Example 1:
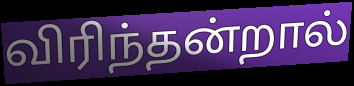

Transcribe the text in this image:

விரிந்தன்றால்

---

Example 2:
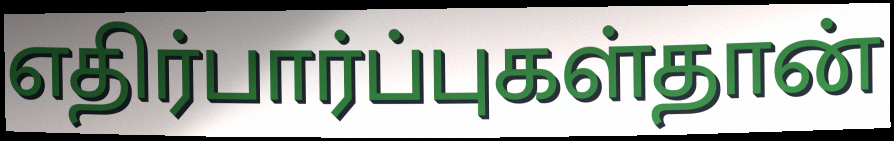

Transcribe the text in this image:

எதிர்பார்ப்புகள்தான்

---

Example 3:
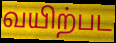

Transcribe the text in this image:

வயிற்பட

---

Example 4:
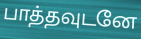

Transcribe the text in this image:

பாத்தவுடனே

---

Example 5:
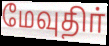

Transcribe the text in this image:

மேவுதிர்